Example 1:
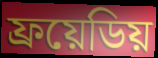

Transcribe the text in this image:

ফ্রয়েডিয়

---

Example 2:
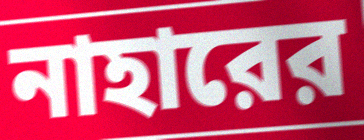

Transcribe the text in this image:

নাহারের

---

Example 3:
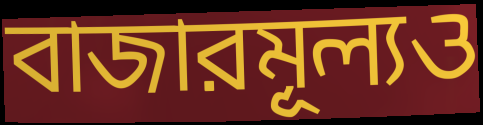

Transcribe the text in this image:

বাজারমূল্যও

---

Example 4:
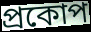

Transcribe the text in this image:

প্রকোপ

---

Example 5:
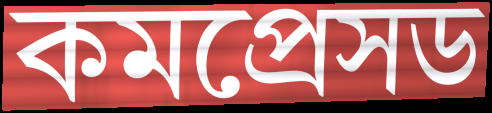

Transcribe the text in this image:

কমপ্রেসড